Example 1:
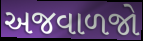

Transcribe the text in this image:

અજવાળજો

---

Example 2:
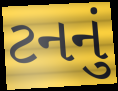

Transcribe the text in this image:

ટનનું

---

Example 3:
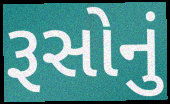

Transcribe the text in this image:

રૂસોનું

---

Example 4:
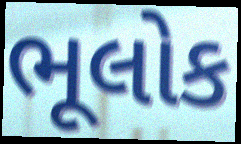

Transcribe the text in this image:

ભૂલોક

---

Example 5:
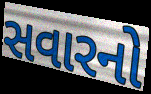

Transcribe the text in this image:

સવારનો